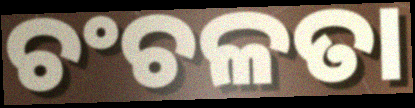
ଚଂଚଳତା